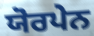
ਯੋਰਪੇਨ